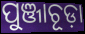
ପୁଞ୍ଜାଚୂଡ଼ା